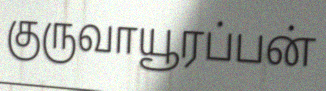
குருவாயூரப்பன்